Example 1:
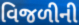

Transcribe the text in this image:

વિજળીની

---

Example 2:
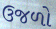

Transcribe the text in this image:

ઉજળો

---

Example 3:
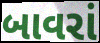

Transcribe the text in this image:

બાવરાં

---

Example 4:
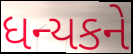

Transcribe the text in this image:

ધન્યકને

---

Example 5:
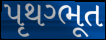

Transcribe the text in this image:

પૃથગ્ભૂત